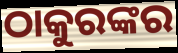
ଠାକୁରଙ୍କର